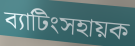
ব্যাটিংসহায়ক